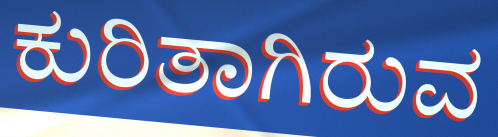
ಕುರಿತಾಗಿರುವ